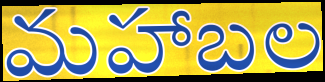
మహాబల